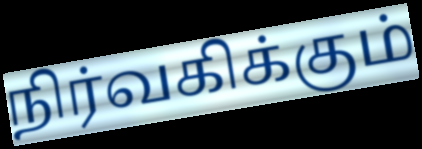
நிர்வகிக்கும்